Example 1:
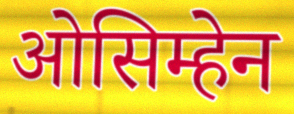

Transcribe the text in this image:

ओसिम्हेन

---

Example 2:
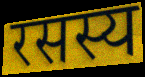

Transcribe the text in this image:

रसस्य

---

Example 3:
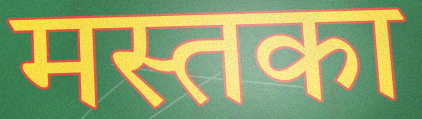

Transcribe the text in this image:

मस्तका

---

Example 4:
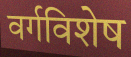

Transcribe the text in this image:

वर्गविशेष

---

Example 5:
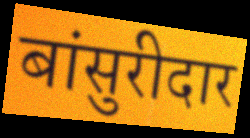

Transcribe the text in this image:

बांसुरीदार